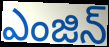
ఎంజిన్